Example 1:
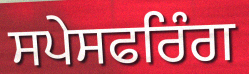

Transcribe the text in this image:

ਸਪੇਸਫਰਿੰਗ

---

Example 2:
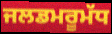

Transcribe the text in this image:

ਜਲਡਮਰੂਮੱਧ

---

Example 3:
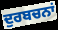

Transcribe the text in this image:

ਦੁਰਬਚਨਾਂ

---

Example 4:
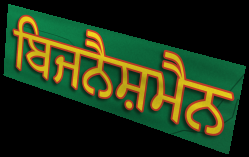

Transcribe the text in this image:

ਬਿਜਨੈਸ਼ਮੈਨ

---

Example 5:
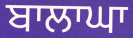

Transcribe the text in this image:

ਬਾਲਾਘਾ